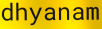
dhyanam